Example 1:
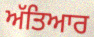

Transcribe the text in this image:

ਅੱਤਿਆਰ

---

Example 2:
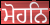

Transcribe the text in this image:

ਮੋਹਨਿ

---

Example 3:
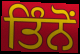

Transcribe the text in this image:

ਤਿੰਨੋਂ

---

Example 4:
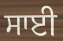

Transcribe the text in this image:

ਸਾਈ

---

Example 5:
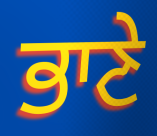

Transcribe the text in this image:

ਭਾਣੇ